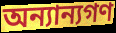
অন্যান্যগণ